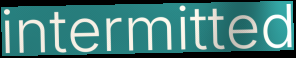
intermitted